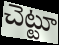
చెట్టూ